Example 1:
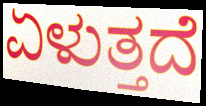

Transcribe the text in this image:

ಏಳುತ್ತದೆ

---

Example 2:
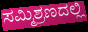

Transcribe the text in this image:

ಸಮ್ಮಿಶ್ರಣದಲ್ಲಿ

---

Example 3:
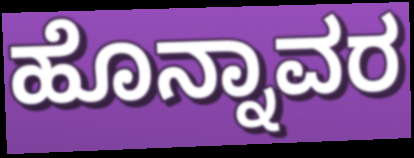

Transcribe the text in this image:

ಹೊನ್ನಾವರ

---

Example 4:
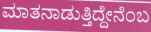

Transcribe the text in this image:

ಮಾತನಾಡುತ್ತಿದ್ದೇನೆಂಬ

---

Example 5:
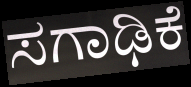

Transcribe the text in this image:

ಸಗಾಢಿಕೆ